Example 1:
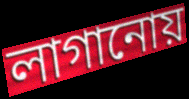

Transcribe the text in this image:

লাগানোয়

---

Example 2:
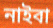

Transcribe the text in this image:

নাইবা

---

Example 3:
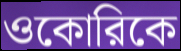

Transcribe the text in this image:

ওকোরিকে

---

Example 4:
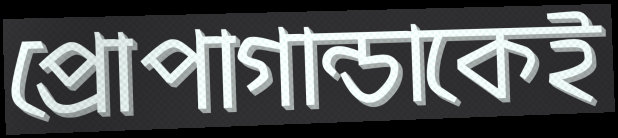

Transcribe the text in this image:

প্রোপাগান্ডাকেই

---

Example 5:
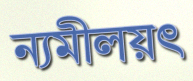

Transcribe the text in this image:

ন্যমীলয়ৎ